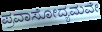
ಪ್ರವಾಸೋದ್ಯಮವೇ